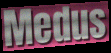
Medus